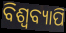
ବିଶ୍ବବ୍ୟାପି